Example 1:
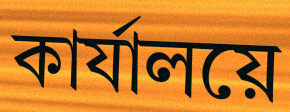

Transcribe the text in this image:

কার্যালয়ে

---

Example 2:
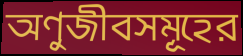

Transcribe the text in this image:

অণুজীবসমূহের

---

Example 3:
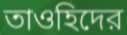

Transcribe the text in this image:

তাওহিদের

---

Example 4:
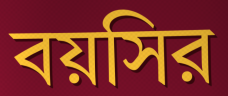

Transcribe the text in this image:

বয়সির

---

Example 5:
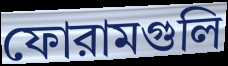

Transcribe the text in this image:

ফোরামগুলি